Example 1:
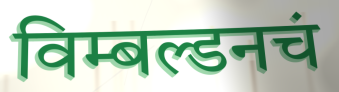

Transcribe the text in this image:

विम्बल्डनचं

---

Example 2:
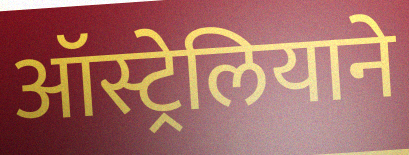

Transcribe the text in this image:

ऑस्ट्रेलियाने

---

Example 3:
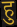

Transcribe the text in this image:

हु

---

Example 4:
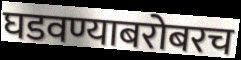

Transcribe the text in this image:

घडवण्याबरोबरच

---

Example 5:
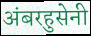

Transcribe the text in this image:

अंबरहुसेनी